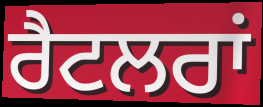
ਰੈਟਲਰਾਂ